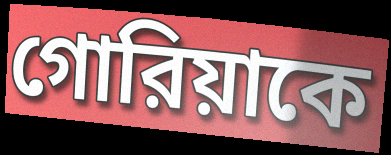
গোরিয়াকে